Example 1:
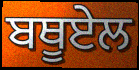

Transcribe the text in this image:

ਬਥੂਏਲ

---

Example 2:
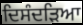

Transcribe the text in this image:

ਦਿਸੰਦੜਿਆ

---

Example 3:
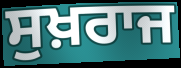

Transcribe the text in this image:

ਸੁਖ਼ਰਾਜ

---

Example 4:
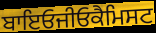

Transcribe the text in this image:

ਬਾਇਓਜੀਓਕੈਮਿਸਟ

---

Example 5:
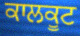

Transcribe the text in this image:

ਕਾਲਕੂਟ